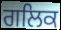
ਗਲਿਕ